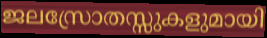
ജലസ്രോതസ്സുകളുമായി